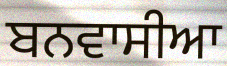
ਬਨਵਾਸੀਆ